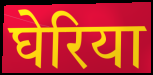
घेरिया